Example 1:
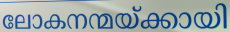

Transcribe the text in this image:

ലോകനന്മയ്ക്കായി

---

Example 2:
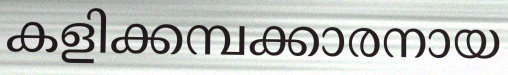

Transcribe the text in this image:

കളിക്കമ്പക്കാരനായ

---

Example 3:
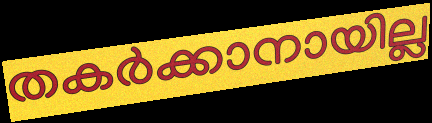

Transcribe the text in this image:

തകർക്കാനായില്ല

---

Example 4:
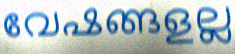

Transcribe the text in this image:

വേഷങ്ങളല്ല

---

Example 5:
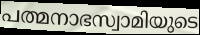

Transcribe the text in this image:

പത്മനാഭസ്വാമിയുടെ